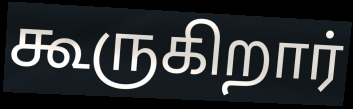
கூருகிறார்